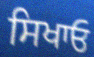
ਸਿਖਾਓ